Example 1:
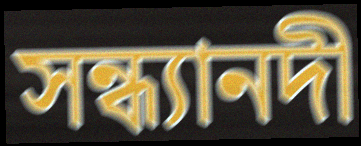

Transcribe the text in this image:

সন্ধ্যানদী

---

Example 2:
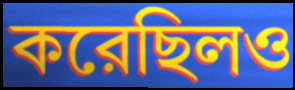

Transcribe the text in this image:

করেছিলও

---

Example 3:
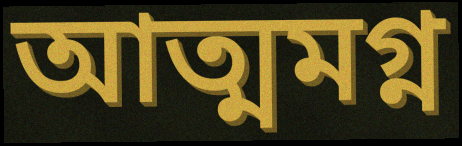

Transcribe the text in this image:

আত্মমগ্ন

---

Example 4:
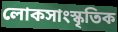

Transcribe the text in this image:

লোকসাংস্কৃতিক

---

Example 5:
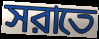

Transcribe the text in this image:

সরাতে